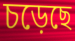
চড়েছে